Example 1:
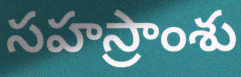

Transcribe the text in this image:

సహస్రాంశు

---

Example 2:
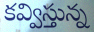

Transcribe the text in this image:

కవ్విస్తున్న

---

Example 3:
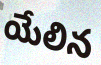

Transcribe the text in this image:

యేలిన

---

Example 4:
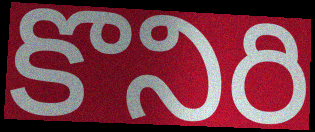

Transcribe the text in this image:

కొనిరి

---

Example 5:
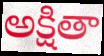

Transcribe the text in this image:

అక్షితా